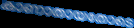
കാണാതായതോടെ